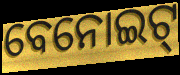
ବେନୋଇଟ୍